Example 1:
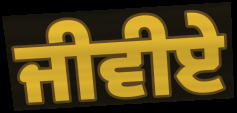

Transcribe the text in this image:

ਜੀਵੀਏ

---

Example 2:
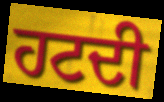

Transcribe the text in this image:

ਹਟਦੀ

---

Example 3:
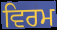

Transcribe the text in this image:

ਵਿਰਮ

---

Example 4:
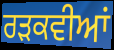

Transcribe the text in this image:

ਰੜਕਵੀਆਂ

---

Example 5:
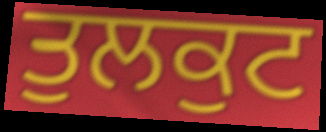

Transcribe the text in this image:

ਤੁਲਕੁਟ